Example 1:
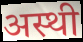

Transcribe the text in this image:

अस्थी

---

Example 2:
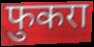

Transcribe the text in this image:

फुकरा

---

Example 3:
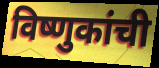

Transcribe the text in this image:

विष्णुकांची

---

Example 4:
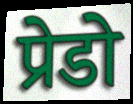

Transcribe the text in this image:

प्रेडो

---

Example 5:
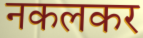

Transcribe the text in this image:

नकलकर